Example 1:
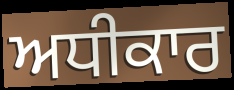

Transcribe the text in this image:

ਅਧੀਕਾਰ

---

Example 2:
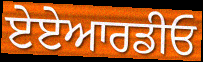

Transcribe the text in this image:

ਏਏਆਰਡੀਓ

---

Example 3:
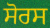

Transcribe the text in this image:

ਸੋਰਸ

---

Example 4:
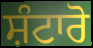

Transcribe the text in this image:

ਸ਼ੰਟਾਰੋ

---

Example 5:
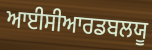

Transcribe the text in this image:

ਆਈਸੀਆਰਡਬਲਯੂ